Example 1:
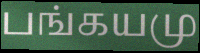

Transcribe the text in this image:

பங்கயமு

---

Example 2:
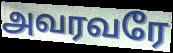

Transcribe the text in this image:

அவரவரே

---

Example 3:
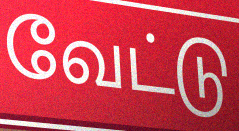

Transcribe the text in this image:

வேட்டு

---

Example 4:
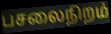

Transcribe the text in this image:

பசலைநிறம்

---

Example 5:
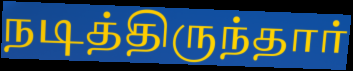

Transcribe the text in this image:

நடித்திருந்தார்